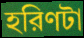
হরিণটা